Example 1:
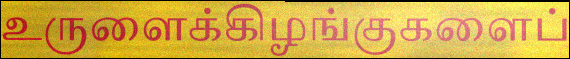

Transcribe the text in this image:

உருளைக்கிழங்குகளைப்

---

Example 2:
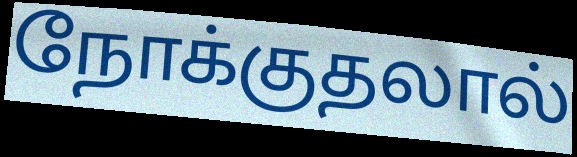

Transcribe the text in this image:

நோக்குதலால்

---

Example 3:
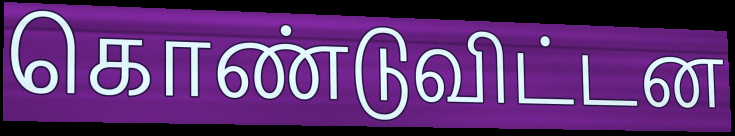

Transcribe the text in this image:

கொண்டுவிட்டன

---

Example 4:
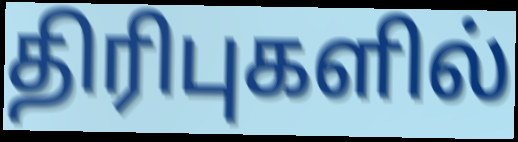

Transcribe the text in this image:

திரிபுகளில்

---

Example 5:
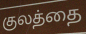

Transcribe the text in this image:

குலத்தை